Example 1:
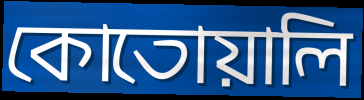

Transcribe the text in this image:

কোতোয়ালি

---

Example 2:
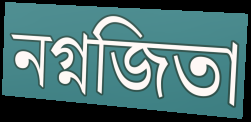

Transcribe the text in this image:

নগ্নজিতা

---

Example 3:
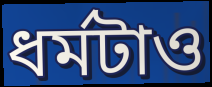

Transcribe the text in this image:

ধর্মটাও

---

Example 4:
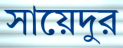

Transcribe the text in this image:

সায়েদুর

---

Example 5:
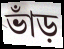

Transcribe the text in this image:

ভাঁড়